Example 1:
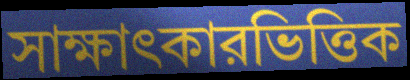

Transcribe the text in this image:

সাক্ষাৎকারভিত্তিক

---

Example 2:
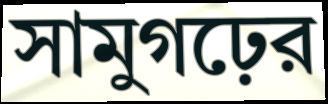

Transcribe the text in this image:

সামুগঢ়ের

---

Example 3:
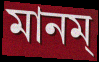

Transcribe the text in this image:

মানম্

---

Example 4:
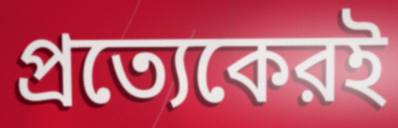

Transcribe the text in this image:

প্রত্যেকেরই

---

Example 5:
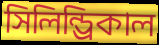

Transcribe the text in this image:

সিলিন্ড্রিকাল